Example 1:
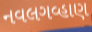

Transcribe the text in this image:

નવલગવ્હાણ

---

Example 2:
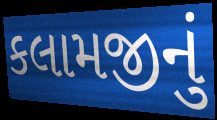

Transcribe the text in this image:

કલામજીનું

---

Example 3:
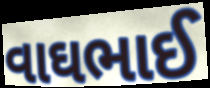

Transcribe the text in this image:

વાઘભાઈ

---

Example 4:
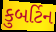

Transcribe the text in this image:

કુબર્ટિન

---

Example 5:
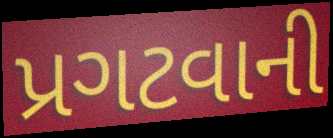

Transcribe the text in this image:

પ્રગટવાની